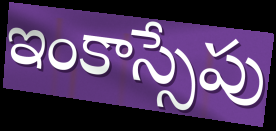
ఇంకాస్సేపు